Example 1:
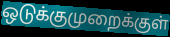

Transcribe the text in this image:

ஒடுக்குமுறைக்குள்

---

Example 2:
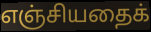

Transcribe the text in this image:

எஞ்சியதைக்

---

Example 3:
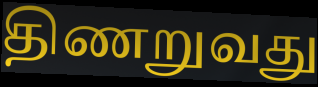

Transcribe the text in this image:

திணறுவது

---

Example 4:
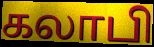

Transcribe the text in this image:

கலாபி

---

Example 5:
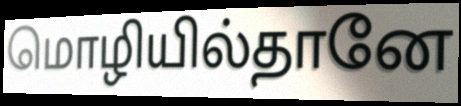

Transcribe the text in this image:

மொழியில்தானே